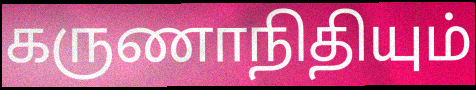
கருணாநிதியும்